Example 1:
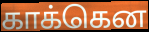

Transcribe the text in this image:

காக்கென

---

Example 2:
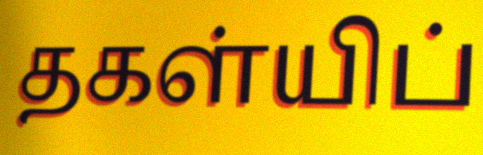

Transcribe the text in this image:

தகள்யிப்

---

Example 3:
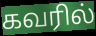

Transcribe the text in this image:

கவரில்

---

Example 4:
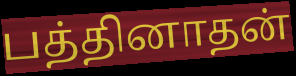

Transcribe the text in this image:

பத்தினாதன்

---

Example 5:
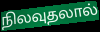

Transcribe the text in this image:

நிலவுதலால்